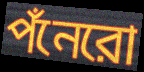
পঁনেরো